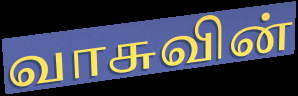
வாசுவின்